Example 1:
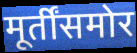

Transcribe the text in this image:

मूर्तींसमोर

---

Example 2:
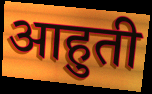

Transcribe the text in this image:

आहुती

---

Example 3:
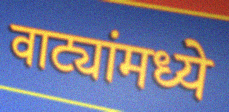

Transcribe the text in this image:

वाट्यांमध्ये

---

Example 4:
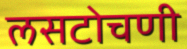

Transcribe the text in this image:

लसटोचणी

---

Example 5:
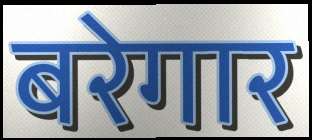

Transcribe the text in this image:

बरेगार